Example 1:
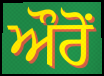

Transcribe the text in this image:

ਔਰੋਂ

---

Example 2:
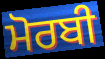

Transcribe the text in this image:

ਮੋਰਬੀ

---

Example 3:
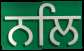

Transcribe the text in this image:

ਨਲਿ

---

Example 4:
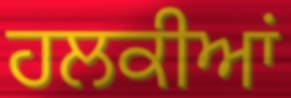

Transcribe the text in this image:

ਹਲਕੀਆਂ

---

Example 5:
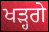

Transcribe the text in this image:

ਖੜ੍ਹਗੇ